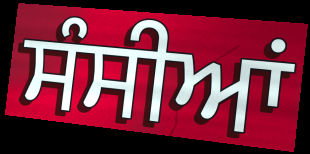
ਸੰਸੀਆਂ